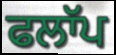
ਫਲਾੱਪ